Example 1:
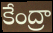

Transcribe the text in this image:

కేంద్రా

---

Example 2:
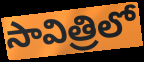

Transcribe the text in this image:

సావిత్రిలో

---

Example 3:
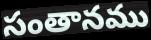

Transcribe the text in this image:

సంతానము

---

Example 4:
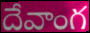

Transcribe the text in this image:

దేవాంగ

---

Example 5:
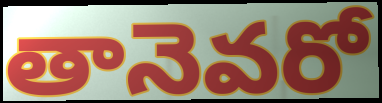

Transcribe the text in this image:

తానెవరో